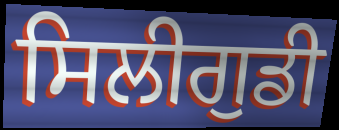
ਸਿਲੀਗੁਡੀ